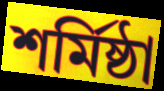
শর্মিষ্ঠা